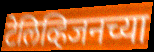
टेलिव्हिजनच्या